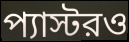
প্যাস্টরও